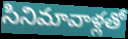
సినిమావాళ్లతో